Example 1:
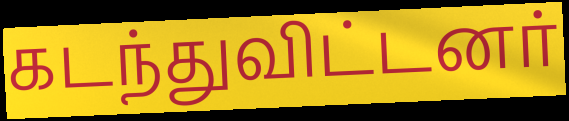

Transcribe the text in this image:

கடந்துவிட்டனர்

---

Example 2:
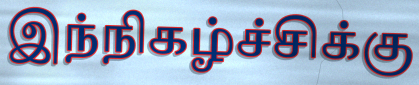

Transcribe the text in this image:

இந்நிகழ்ச்சிக்கு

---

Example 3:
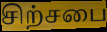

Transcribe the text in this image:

சிற்சபை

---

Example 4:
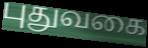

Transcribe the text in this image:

புதுவகை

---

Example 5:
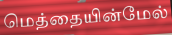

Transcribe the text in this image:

மெத்தையின்மேல்